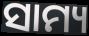
ସାମ୍ୟ